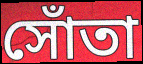
সোঁতা